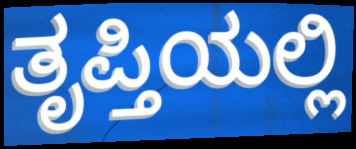
ತೃಪ್ತಿಯಲ್ಲಿ